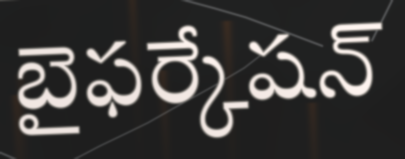
బైఫర్కేషన్